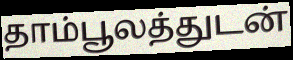
தாம்பூலத்துடன்